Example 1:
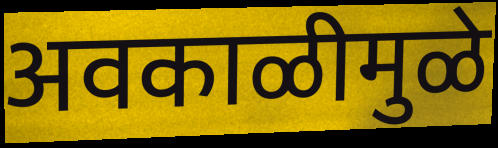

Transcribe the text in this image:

अवकाळीमुळे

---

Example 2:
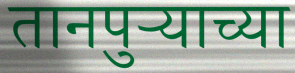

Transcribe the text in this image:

तानपुऱ्याच्या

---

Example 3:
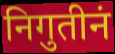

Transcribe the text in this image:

निगुतीनं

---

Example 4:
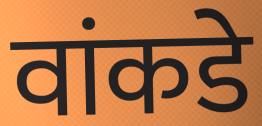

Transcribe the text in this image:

वांकडे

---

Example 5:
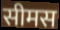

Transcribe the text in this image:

सीमस